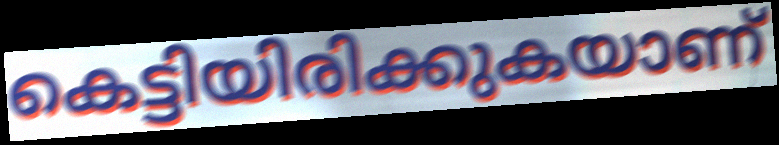
കെട്ടിയിരിക്കുകയാണ്